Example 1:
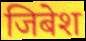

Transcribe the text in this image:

जिबेश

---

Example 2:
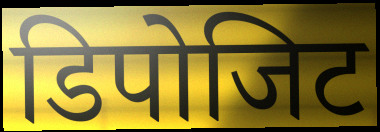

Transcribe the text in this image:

डिपोजिट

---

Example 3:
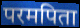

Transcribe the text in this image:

परमपिता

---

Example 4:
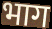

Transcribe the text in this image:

भाग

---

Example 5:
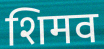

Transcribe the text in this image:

शिमव